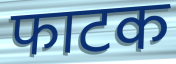
फाटक